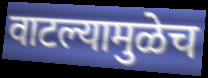
वाटल्यामुळेच